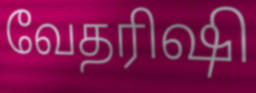
வேதரிஷி